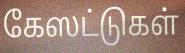
கேஸட்டுகள்